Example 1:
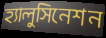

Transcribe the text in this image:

হ্যালুসিনেশন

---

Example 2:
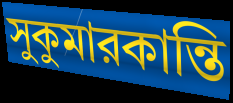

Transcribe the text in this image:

সুকুমারকান্তি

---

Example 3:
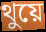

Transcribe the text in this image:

থুয়ে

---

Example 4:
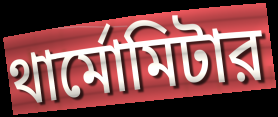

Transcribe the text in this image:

থার্মোমিটার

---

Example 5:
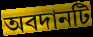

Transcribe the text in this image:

অবদানটি